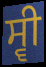
ਸ੍ਵੀ